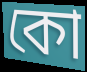
কো